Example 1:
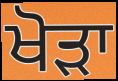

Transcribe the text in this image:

ਖੋੜਾ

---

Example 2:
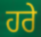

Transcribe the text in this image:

ਹਰੇ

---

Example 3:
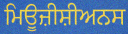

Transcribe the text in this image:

ਮਿਊਜ਼ੀਸ਼ੀਅਨਸ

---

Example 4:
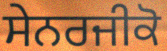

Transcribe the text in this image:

ਸੇਨਰਜੀਕੋ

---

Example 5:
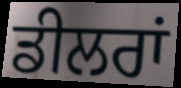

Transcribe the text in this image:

ਡੀਲਰਾਂ